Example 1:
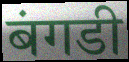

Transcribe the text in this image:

बंगडी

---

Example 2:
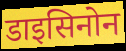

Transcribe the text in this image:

डाइसिनोन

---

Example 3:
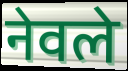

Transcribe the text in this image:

नेवले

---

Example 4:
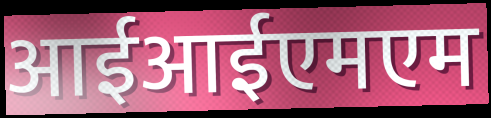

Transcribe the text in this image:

आईआईएमएम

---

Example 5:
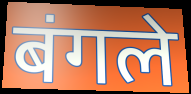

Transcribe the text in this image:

बंगले